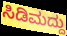
ಸಿಡಿಮದ್ದು